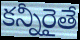
కన్నీరైతే